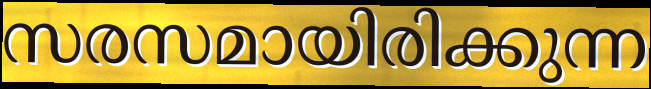
സരസമായിരിക്കുന്ന